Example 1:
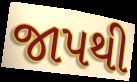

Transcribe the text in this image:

જાપથી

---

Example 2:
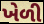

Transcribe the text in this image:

ખેળી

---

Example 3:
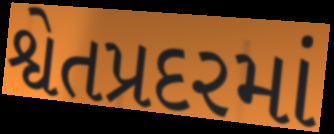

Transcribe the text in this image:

શ્વેતપ્રદરમાં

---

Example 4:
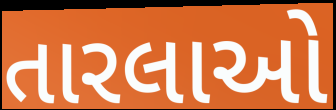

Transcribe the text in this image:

તારલાઓ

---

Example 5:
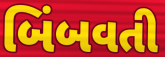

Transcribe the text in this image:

બિંબવતી